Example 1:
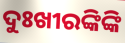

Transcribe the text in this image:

ଦୁଃଖୀରଙ୍କିଙ୍କି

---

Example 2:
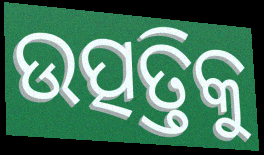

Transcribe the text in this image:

ଉତ୍ପତ୍ତିକୁ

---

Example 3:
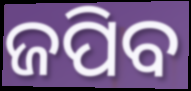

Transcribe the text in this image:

ଜପିବ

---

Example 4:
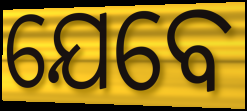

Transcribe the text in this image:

ଯେବେ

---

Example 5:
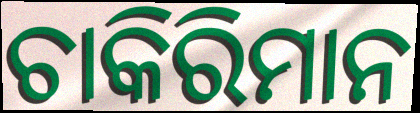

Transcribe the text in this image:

ଚାକିରିମାନ